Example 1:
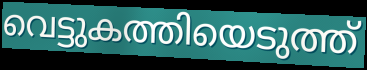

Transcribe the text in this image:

വെട്ടുകത്തിയെടുത്ത്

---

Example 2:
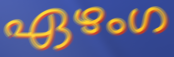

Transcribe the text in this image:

ഏഴംഗ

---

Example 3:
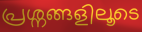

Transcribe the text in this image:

പ്രശ്നങ്ങളിലൂടെ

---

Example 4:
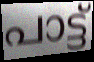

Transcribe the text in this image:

പാട്ട്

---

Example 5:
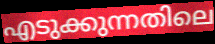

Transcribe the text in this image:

എടുക്കുന്നതിലെ